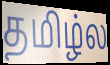
தமிழ்ல